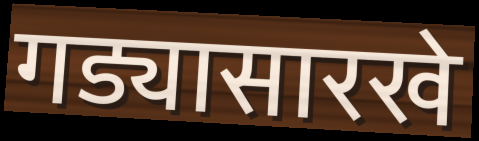
गड्यासारखे